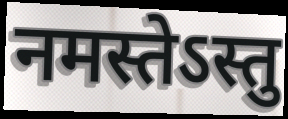
नमस्तेऽस्तु